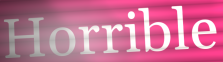
Horrible